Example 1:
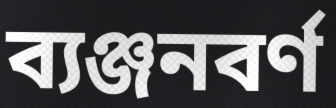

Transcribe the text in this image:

ব্যঞ্জনবর্ণ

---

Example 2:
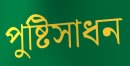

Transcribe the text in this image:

পুষ্টিসাধন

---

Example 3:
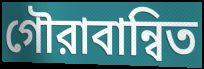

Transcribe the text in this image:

গৌরাবান্বিত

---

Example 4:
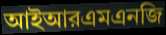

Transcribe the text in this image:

আইআরএমএনজি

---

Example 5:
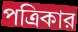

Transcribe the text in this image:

পত্রিকার